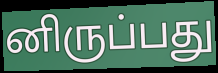
னிருப்பது